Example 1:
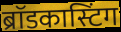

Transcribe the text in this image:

ब्रॉडकास्टिंग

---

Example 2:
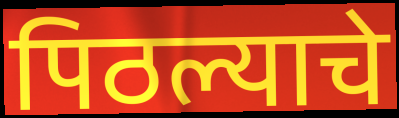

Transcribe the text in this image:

पिठल्याचे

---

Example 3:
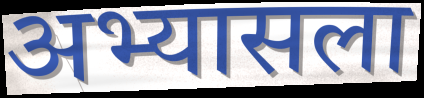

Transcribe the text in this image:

अभ्यासला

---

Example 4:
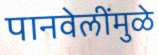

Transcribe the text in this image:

पानवेलींमुळे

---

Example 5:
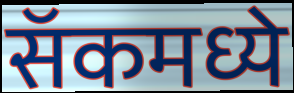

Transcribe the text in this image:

सॅकमध्ये